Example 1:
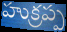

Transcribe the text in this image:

హుక్రప్ప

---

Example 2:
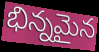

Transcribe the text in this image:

భిన్నమైన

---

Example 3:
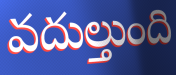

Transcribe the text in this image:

వదుల్తుంది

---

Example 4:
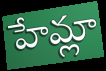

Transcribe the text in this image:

హేమ్లా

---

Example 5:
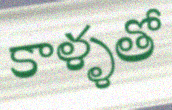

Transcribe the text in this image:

కాళ్ళతో